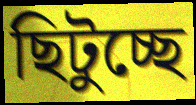
ছিটুচ্ছে